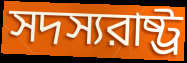
সদস্যরাষ্ট্র